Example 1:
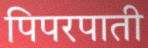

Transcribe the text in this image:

पिपरपाती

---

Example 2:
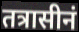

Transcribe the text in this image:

तत्रासीनं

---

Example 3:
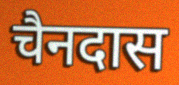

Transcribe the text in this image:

चैनदास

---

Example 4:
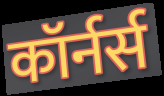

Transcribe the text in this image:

कॉर्नर्स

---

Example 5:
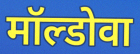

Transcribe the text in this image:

मॉल्डोवा